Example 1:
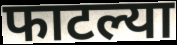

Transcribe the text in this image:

फाटल्या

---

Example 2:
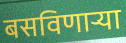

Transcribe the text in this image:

बसविणार्‍या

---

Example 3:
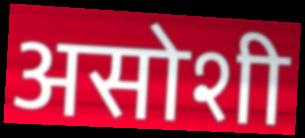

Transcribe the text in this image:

असोशी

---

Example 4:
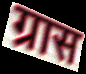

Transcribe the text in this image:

ग्रास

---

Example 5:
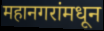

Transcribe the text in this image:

महानगरांमधून